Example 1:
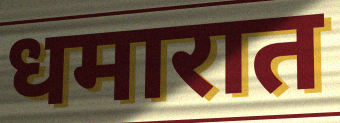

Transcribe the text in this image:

धमारात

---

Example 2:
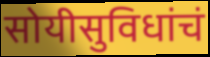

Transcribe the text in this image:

सोयीसुविधांचं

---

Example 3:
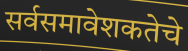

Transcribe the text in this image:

सर्वसमावेशकतेचे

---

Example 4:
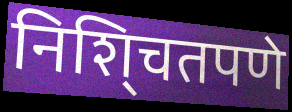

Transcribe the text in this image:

निश्‍चितपणे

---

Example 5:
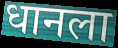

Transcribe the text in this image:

धानला